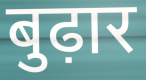
बुढ़ार